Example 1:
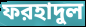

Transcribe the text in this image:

ফরহাদুল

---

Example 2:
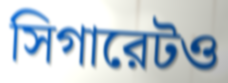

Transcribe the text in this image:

সিগারেটও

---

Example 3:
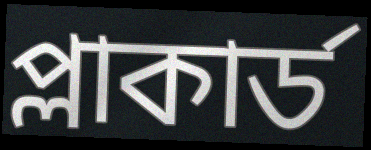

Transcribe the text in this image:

প্লাকার্ড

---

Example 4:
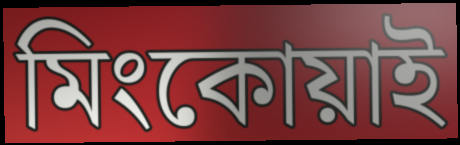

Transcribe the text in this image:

মিংকোয়াই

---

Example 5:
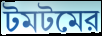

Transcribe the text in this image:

টমটমের